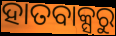
ହାତବାକ୍ସରୁ